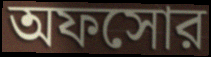
অফসোর